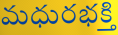
మధురభక్తి